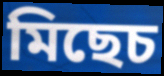
মিছেচ